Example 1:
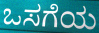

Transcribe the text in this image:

ಒಸಗೆಯ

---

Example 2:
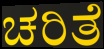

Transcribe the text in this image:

ಚರಿತೆ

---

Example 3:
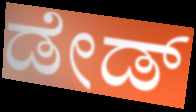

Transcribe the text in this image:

ಡೇಡ್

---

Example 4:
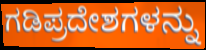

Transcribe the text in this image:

ಗಡಿಪ್ರದೇಶಗಳನ್ನು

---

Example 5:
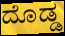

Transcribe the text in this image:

ದೊಡ್ಡ